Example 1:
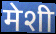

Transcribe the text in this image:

मेशी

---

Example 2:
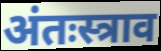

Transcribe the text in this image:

अंतःस्त्राव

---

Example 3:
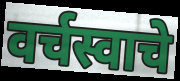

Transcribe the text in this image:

वर्चस्वाचे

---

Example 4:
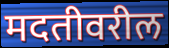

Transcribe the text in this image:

मदतीवरील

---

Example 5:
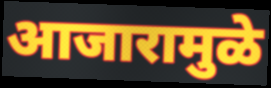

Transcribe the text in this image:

आजारामुळे